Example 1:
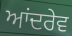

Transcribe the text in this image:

ਆਂਦਰੇਵ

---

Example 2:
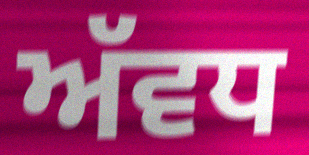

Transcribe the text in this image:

ਅੱਵਧ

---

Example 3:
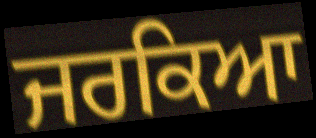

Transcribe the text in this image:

ਜਰਕਿਆ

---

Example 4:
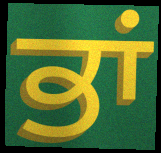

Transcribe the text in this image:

ਭਾਂ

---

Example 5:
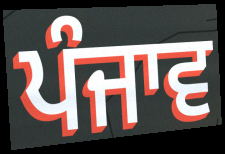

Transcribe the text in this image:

ਪੰਜਾਵ